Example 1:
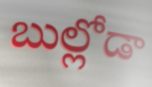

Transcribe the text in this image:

బుల్లోడా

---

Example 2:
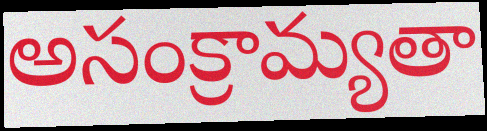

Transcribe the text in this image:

అసంక్రామ్యతా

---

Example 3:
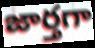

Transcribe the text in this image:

జార్తగా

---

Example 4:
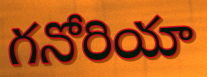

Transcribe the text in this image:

గనోరియా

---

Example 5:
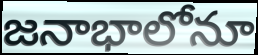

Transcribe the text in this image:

జనాభాలోనూ